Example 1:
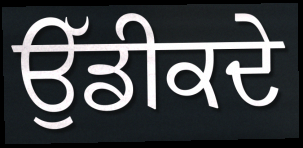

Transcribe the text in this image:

ਉੱਡੀਕਦੇ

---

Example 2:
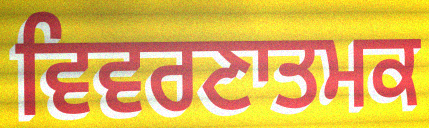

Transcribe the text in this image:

ਵਿਵਰਣਾਤਮਕ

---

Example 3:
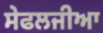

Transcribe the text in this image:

ਸੇਫਲਜੀਆ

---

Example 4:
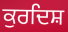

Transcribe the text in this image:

ਕੁਰਦਿਸ਼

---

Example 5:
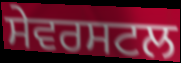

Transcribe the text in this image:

ਸੇਵਰਸਟਲ